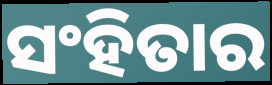
ସଂହିତାର